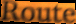
Route